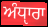
ਅੰਧੵਾਰਾ